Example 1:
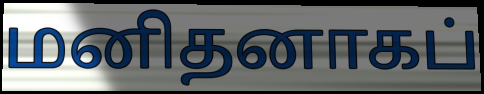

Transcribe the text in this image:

மனிதனாகப்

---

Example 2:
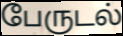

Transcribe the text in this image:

பேருடல்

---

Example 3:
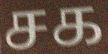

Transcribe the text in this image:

சக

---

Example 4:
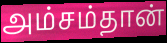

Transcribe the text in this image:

அம்சம்தான்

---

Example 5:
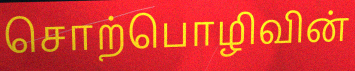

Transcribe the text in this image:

சொற்பொழிவின்